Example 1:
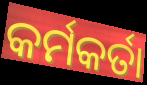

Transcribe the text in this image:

କର୍ମକର୍ତା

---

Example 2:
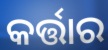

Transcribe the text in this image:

କର୍ତ୍ତାର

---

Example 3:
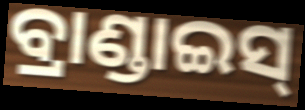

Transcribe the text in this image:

ବ୍ରାଣ୍ଡାଇସ୍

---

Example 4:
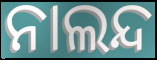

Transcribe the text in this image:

ନାଲନ୍ଦ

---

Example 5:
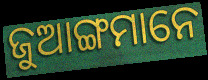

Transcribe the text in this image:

ଜୁଆଙ୍ଗମାନେ